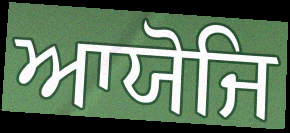
ਆਯੋਜਿ